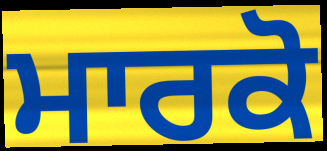
ਮਾਰਕੋ